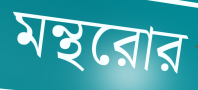
মন্থরোর